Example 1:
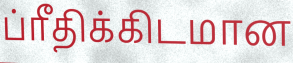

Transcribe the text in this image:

ப்ரீதிக்கிடமான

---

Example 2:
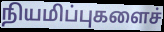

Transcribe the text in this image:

நியமிப்புகளைச்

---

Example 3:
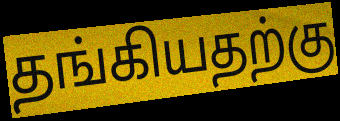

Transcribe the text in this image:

தங்கியதற்கு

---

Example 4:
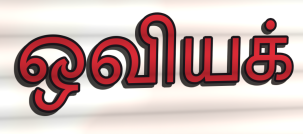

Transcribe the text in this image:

ஒவியக்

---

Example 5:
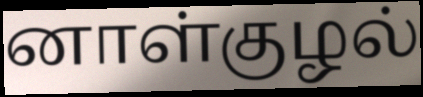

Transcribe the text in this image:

னாள்குழல்